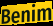
Benim